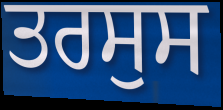
ਤਰਸੁਸ